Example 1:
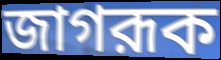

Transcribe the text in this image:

জাগরূক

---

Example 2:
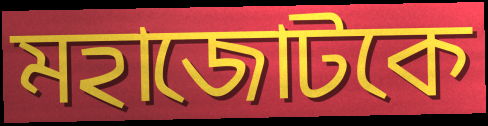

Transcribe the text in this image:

মহাজোটকে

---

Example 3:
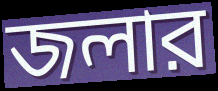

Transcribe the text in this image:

জলার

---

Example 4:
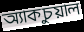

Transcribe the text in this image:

অ্যাকচুয়াল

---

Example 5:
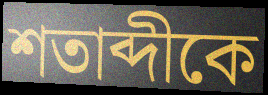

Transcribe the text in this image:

শতাব্দীকে